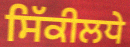
ਸਿੱਕੀਲਧੇ